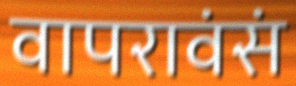
वापरावंसं